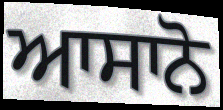
ਆਸਾਨੋ